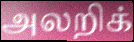
அலறிக்